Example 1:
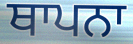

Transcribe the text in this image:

ਥਾਪਨਾ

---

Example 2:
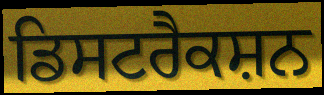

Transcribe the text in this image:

ਡਿਸਟਰੈਕਸ਼ਨ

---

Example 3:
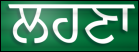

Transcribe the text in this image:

ਲਹਣਾ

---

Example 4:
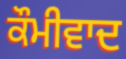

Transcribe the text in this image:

ਕੌਮੀਵਾਦ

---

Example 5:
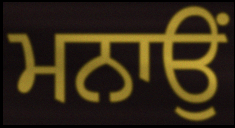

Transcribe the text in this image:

ਮਨਾਉਂ